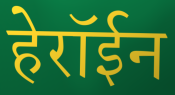
हेरॉईन